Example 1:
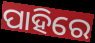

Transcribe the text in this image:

ପାହିରେ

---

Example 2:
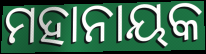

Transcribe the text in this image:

ମହାନାୟକ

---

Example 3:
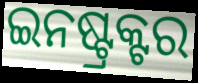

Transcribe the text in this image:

ଇନଷ୍ଟ୍ରକ୍ଟର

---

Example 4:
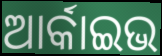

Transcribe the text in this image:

ଆର୍କାଇଭ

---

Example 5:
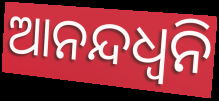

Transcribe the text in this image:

ଆନନ୍ଦଧ୍ଵନି